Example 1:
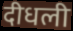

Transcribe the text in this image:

दीधली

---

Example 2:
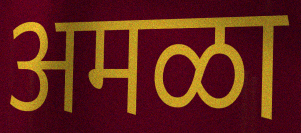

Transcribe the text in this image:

अमळा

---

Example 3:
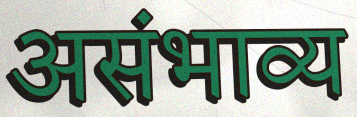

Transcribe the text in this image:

असंभाव्य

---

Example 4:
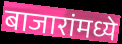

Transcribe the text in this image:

बाजारांमध्ये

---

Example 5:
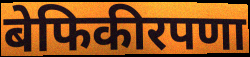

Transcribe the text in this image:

बेफिकीरपणा